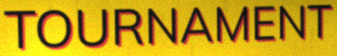
TOURNAMENT